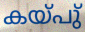
കയ്പു്